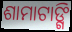
ଶାମାଟାଙ୍ଗି